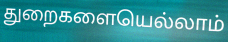
துறைகளையெல்லாம்